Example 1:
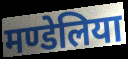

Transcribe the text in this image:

मण्डेलिया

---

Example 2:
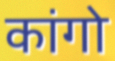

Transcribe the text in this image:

कांगो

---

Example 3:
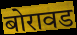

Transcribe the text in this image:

बोरावड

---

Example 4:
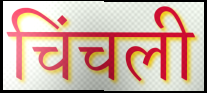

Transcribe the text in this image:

चिंचली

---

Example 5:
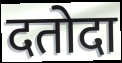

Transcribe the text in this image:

दतोदा